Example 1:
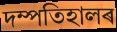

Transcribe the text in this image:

দম্পতিহালৰ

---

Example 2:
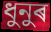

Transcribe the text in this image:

ধুনুৰ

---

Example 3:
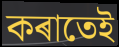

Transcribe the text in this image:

কৰাতেই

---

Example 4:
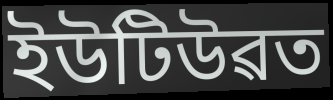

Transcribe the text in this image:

ইউটিউৱত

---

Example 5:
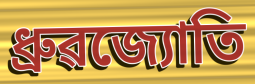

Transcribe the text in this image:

ধ্ৰুৱজ্যোতি